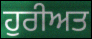
ਹੁਰੀਅਤ